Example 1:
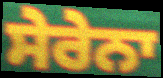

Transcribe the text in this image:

ਸੇਰੇਨਾ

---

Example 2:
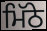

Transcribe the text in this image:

ਮਿੱਠੇ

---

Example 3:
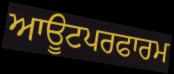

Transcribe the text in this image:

ਆਊਟਪਰਫਾਰਮ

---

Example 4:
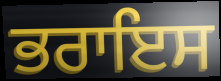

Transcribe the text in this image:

ਭਰਾਇਸ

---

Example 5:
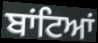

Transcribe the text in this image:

ਬਾਂਟਿਆਂ